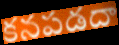
కనపడదా